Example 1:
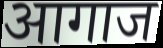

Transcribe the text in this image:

आगाज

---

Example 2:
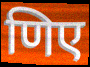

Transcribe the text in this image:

णिए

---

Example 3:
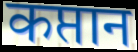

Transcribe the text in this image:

कप्तान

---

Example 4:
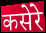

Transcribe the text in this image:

कसेरे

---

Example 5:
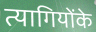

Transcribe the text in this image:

त्यागियोंके